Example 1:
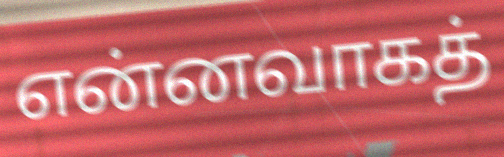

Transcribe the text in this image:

என்னவாகத்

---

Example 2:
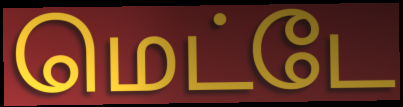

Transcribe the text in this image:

மெட்டே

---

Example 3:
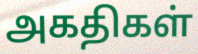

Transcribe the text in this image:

அகதிகள்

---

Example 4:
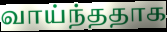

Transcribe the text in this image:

வாய்ந்ததாக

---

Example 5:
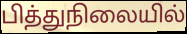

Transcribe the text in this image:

பித்துநிலையில்